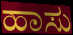
ಹಾಸು